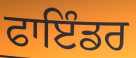
ਫਾਇੰਡਰ